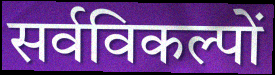
सर्वविकल्पों